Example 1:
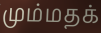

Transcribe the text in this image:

மும்மதக்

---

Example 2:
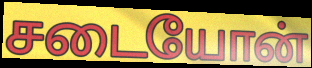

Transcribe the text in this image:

சடையோன்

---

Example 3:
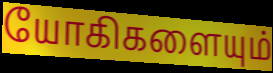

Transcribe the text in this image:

யோகிகளையும்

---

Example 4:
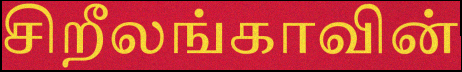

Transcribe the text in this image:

சிறீலங்காவின்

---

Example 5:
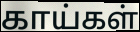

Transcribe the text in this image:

காய்கள்